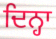
ਦਿਨ੍ਹਾ